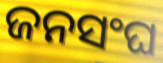
ଜନସଂଘ